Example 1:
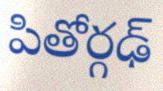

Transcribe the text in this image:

పితోర్గఢ్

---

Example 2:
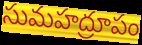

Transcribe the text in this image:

సుమహద్రూపం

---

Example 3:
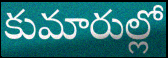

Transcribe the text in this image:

కుమారుల్లో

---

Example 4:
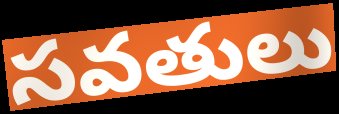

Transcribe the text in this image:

సవతులు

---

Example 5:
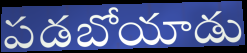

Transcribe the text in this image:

పడబోయాడు